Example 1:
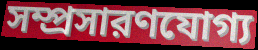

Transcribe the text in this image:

সম্প্রসারণযোগ্য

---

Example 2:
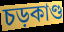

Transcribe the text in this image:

চড়কাণ্ড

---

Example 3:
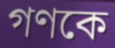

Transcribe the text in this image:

গণকে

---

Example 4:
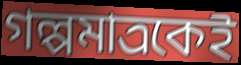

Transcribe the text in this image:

গল্পমাত্রকেই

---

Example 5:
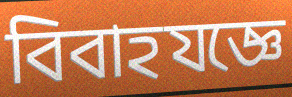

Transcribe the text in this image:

বিবাহযজ্ঞে